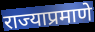
राज्याप्रमाणे